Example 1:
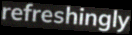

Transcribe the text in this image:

refreshingly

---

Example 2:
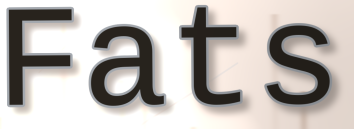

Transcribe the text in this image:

Fats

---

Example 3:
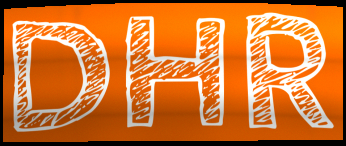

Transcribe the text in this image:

DHR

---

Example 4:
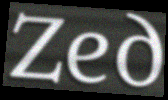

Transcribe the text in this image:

Zed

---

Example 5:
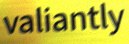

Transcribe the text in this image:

valiantly